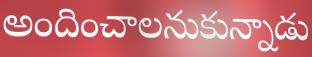
అందించాలనుకున్నాడు